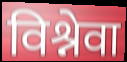
विश्नेवा